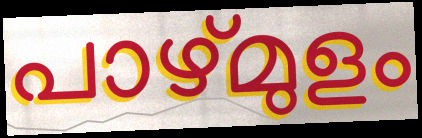
പാഴ്മുളം